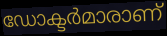
ഡോക്ടർമാരാണ്